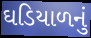
ઘડિયાળનું